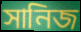
সানিজ